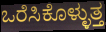
ಒರೆಸಿಕೊಳ್ಳುತ್ತ